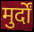
मुर्दों